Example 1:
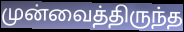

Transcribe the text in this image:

முன்வைத்திருந்த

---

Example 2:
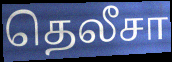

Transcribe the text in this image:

தெலீசா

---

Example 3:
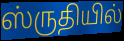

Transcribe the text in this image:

ஸ்ருதியில்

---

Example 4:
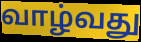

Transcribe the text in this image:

வாழ்வது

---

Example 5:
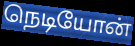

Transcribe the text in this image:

நெடியோன்